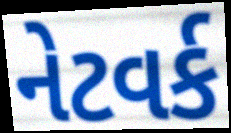
નેટવર્ક